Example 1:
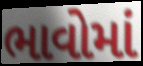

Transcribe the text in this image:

ભાવોમાં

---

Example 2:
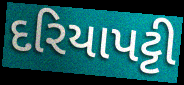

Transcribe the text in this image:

દરિયાપટ્ટી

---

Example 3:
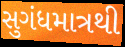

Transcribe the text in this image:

સુગંધમાત્રથી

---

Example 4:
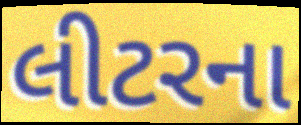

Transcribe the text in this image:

લીટરના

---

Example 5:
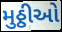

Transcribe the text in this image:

મુઠ્ઠીઓ